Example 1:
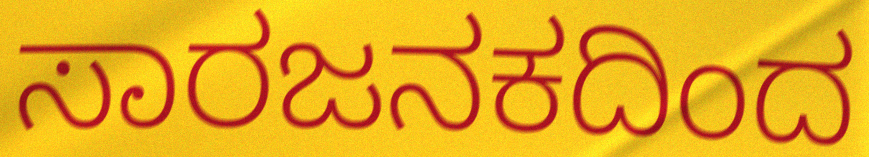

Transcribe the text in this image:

ಸಾರಜನಕದಿಂದ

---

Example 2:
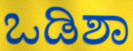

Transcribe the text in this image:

ಒಡಿಶಾ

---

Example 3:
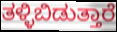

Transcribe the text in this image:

ತಳ್ಳಿಬಿಡುತ್ತಾರೆ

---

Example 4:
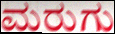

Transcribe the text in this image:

ಮರುಗು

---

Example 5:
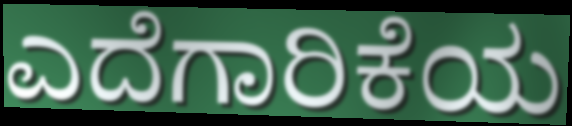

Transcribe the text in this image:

ಎದೆಗಾರಿಕೆಯ